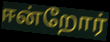
ஈன்றோர்